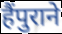
हैंपुराने